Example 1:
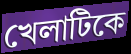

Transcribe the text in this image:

খেলাটিকে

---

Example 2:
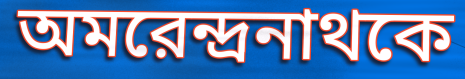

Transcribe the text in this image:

অমরেন্দ্রনাথকে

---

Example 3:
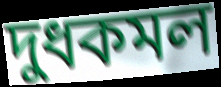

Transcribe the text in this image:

দুধকমল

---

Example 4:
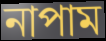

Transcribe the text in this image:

নাপাম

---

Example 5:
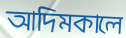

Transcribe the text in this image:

আদিমকালে